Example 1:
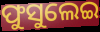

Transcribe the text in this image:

ଫୁସୁଲେଇ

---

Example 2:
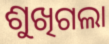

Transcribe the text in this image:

ଶୁଖିଗଲା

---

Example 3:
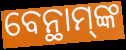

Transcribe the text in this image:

ବେନ୍ଥାମ୍‌ଙ୍କ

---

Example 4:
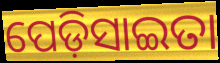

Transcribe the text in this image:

ପେଡ଼ିସାଇତା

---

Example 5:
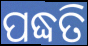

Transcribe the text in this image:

ପଦ୍ଧତି